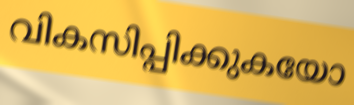
വികസിപ്പിക്കുകയോ